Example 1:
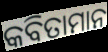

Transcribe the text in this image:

କବିତାମାନ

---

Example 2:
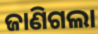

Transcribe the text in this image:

ଜାଣିଗଲା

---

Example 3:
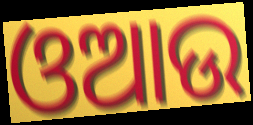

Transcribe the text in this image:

ଓଆଉ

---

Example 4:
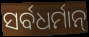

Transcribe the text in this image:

ସର୍ବଧର୍ମାନ୍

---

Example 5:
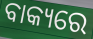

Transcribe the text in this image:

ବାକ୍ୟରେ